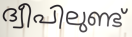
ദ്വീപിലുണ്ട്